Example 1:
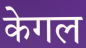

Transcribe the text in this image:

केगल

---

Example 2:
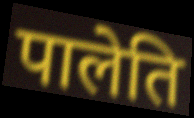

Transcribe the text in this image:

पालेति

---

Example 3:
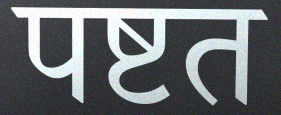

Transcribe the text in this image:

पष्टत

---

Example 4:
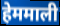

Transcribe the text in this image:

हेममाली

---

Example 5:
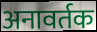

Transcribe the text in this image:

अनावर्तक